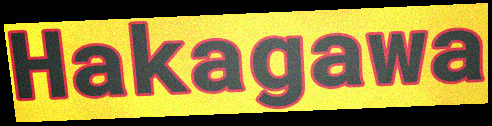
Hakagawa